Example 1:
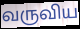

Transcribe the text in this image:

வருவிய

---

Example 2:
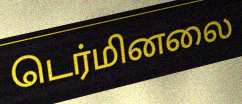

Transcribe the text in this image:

டெர்மினலை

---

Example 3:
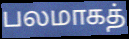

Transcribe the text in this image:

பலமாகத்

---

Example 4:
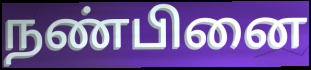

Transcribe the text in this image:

நண்பினை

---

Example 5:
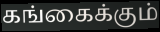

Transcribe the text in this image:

கங்கைக்கும்